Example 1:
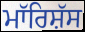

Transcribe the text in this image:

ਮਾੱਰਿਸ਼ੱਸ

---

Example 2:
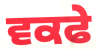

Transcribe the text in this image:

ਵਕਫੇ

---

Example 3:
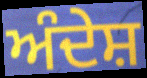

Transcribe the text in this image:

ਅੰਦੇਸ਼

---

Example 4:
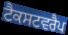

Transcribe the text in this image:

ਟੈਕਸਟਵਰੈਪ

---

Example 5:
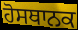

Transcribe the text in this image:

ਹੋਸਥਾਨਕ